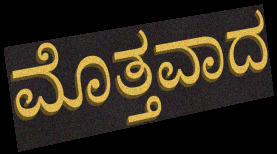
ಮೊತ್ತವಾದ